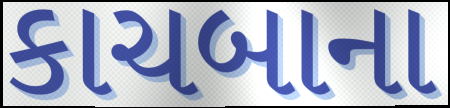
કાચબાના